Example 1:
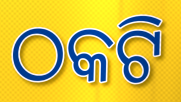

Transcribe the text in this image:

ଠକଟି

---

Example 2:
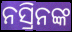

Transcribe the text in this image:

ନସ୍ରିନଙ୍କ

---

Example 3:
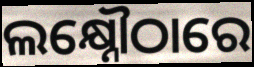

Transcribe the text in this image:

ଲକ୍ଷ୍ନୌଠାରେ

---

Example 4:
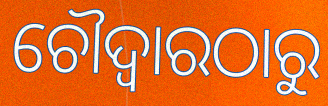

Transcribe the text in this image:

ଚୌଦ୍ୱାରଠାରୁ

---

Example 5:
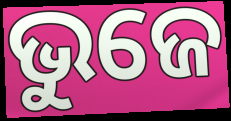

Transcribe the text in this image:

ଭୁଜେ